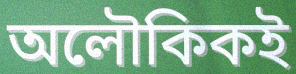
অলৌকিকই